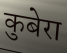
कुबेरा